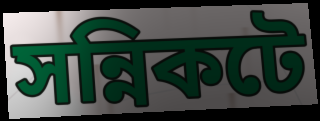
সন্নিকটে